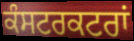
ਕੰਸਟਰਕਟਰਾਂ